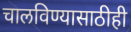
चालविण्यासाठीही